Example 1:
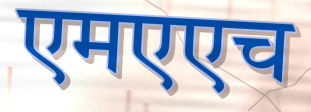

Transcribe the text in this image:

एमएएच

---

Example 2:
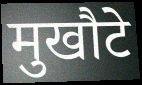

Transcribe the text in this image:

मुखौटे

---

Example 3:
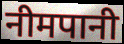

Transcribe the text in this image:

नीमपानी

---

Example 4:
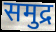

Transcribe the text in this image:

समुद्र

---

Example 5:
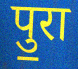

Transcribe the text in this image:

पु॒रा